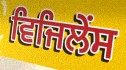
ਵਿਜਿਲੇਂਸ